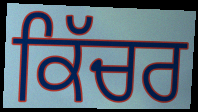
ਕਿੱਚਰ